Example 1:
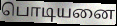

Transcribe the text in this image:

பொடியனை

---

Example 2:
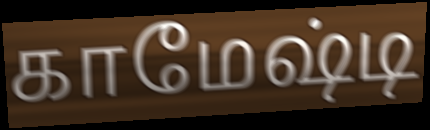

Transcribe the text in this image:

காமேஷ்டி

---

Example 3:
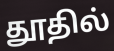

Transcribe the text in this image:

தூதில்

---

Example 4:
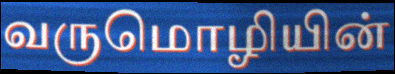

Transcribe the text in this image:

வருமொழியின்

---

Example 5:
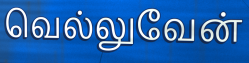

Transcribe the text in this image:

வெல்லுவேன்